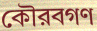
কৌরবগণ